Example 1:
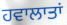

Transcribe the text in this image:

ਹਵਾਲਾਤਾਂ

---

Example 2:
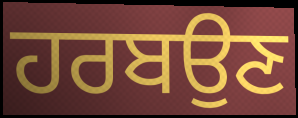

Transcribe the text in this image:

ਹਰਬਉਣ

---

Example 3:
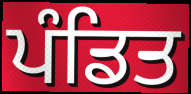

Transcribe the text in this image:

ਪੰਡਿਤ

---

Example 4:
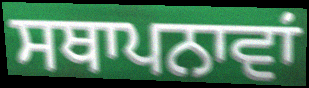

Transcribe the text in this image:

ਸਥਾਪਨਾਵਾਂ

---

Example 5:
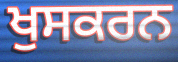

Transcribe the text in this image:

ਖੁਸਕਰਨ